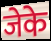
जेके